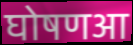
घोषणआ